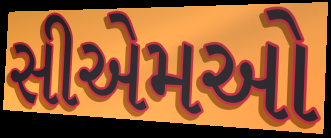
સીએમઓ